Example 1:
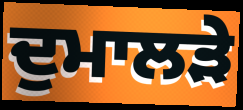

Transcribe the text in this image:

ਦੁਮਾਲੜੇ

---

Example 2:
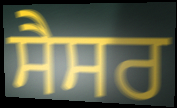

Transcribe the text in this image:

ਸੈਸਰ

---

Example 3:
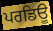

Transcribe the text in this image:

ਪਰਡਿਊ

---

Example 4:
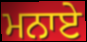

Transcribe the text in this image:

ਮਨਾਏ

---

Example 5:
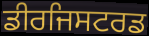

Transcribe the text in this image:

ਡੀਰਜਿਸਟਰਡ